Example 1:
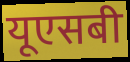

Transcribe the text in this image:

यूएसबी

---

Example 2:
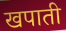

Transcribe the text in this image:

खपाती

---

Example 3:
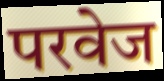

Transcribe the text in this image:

परवेज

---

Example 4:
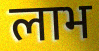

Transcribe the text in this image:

लाभ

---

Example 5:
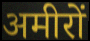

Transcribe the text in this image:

अमीरों